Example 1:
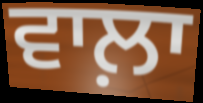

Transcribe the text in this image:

ਵਾਲ਼ਾ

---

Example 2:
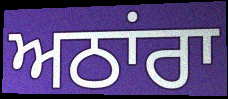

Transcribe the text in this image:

ਅਠਾਂਰਾ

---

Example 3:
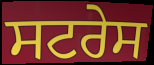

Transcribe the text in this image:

ਸਟਰੇਸ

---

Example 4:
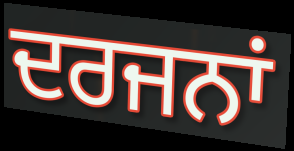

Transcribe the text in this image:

ਦਰਜਨਾਂ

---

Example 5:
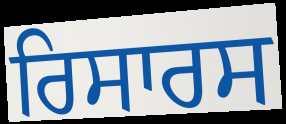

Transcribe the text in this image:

ਰਿਸਾਰਸ